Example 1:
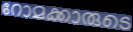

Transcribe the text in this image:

റോമക്കാരുടെ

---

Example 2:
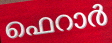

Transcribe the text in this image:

ഫെറാർ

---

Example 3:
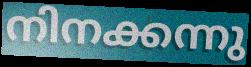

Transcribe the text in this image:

നിനക്കന്നു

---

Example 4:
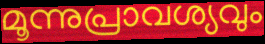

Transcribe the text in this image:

മൂന്നുപ്രാവശ്യവും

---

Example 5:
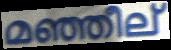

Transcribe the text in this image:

മഞ്ഞീല്